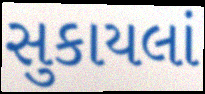
સુકાયલાં